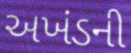
અખંડની